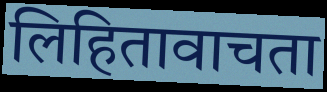
लिहितावाचता